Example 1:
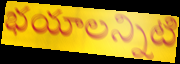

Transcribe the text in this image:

భయాలన్నిటి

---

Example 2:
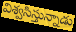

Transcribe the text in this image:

విశ్వసిస్తున్నాడు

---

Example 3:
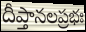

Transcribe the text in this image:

దీప్తానలప్రభః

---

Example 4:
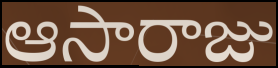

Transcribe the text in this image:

ఆసారాజు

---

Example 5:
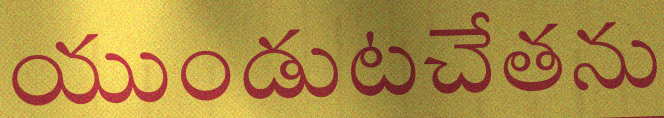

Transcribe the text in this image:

యుండుటచేతను